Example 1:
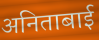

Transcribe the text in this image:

अनिताबाई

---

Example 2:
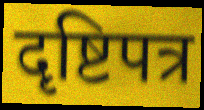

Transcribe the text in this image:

दृष्टिपत्र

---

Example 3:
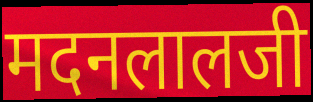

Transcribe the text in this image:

मदनलालजी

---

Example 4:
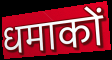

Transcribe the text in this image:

धमाकों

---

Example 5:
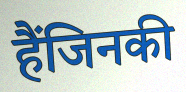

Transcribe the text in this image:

हैंजिनकी